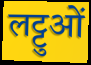
लट्टुओं